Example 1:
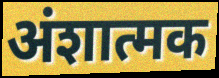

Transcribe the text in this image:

अंशात्मक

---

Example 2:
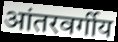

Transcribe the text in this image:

आंतरवर्गीय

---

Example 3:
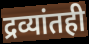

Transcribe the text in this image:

द्रव्यांतही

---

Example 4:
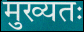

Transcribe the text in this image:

मुख्यतः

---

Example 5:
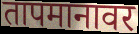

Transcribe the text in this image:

तापमानावर